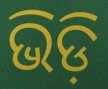
ଭିଡ଼ି